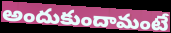
అందుకుందామంటే